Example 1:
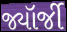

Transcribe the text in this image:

જ્યૉર્જી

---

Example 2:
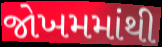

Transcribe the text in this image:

જોખમમાંથી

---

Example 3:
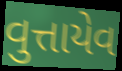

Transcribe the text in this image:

વુત્તાયેવ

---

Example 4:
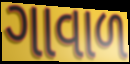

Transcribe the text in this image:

ગાવાળ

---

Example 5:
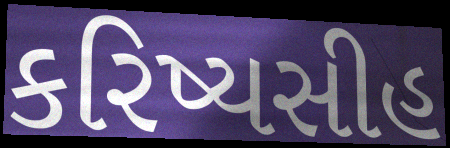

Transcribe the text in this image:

કરિષ્યસીહ